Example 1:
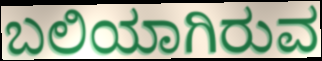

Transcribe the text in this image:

ಬಲಿಯಾಗಿರುವ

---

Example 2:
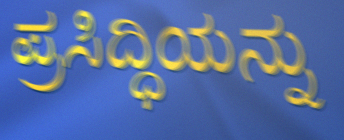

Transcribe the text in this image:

ಪ್ರಸಿದ್ಧಿಯನ್ನು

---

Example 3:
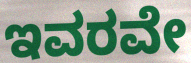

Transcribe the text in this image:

ಇವರವೇ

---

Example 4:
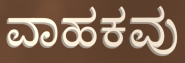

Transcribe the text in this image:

ವಾಹಕವು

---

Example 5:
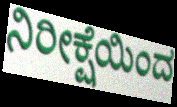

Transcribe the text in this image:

ನಿರೀಕ್ಷೆಯಿಂದ